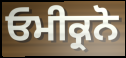
ਓਮੀਕ੍ਰਨੋ